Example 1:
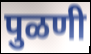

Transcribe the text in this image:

पुळणी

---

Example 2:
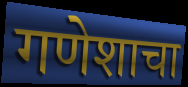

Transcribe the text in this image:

गणेशाचा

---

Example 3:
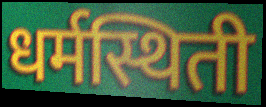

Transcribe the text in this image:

धर्मस्थिती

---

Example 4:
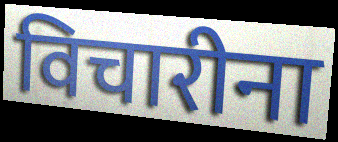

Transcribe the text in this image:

विचारीना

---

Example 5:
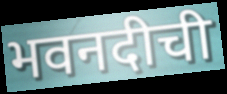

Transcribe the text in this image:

भवनदीची